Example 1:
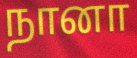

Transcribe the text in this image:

நானா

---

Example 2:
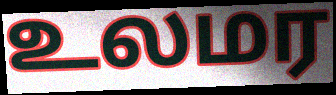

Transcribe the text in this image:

உலமர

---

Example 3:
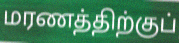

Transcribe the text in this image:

மரணத்திற்குப்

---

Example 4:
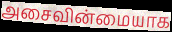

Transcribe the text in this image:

அசைவின்மையாக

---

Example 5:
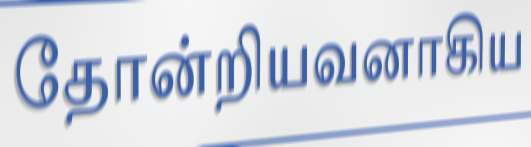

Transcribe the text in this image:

தோன்றியவனாகிய